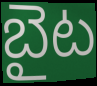
బైట